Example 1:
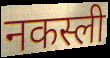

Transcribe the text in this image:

नकस्ली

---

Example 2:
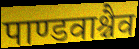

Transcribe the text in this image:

पाण्डवाश्चैव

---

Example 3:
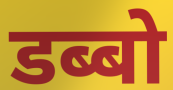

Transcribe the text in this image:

डब्बो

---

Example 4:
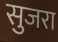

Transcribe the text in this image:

सुजरा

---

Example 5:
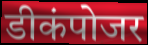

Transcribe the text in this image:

डीकंपोजर